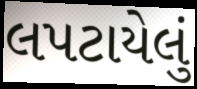
લપટાયેલું